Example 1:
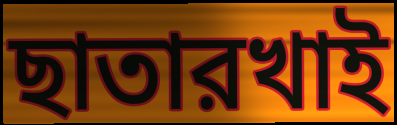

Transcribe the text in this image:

ছাতারখাই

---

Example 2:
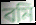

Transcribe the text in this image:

বমি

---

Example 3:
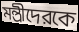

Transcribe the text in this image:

মন্ত্রীদেরকে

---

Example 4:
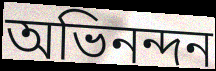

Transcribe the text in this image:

অভিনন্দন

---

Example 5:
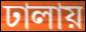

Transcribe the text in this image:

ঢালায়